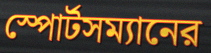
স্পোর্টসম্যানের